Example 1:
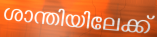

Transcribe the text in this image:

ശാന്തിയിലേക്ക്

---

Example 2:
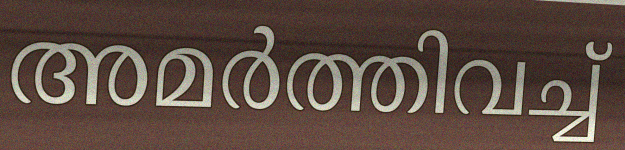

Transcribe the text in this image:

അമർത്തിവച്ച്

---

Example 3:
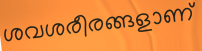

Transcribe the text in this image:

ശവശരീരങ്ങളാണ്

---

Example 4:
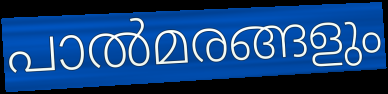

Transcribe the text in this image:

പാൽമരങ്ങളും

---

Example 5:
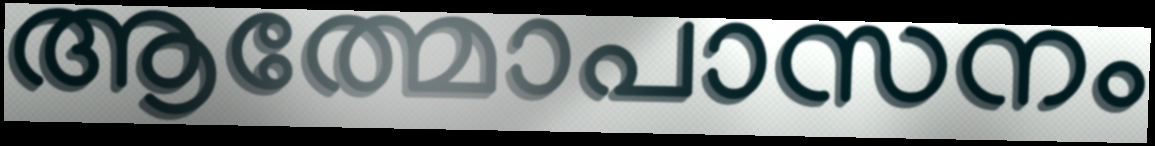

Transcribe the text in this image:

ആത്മോപാസനം